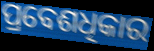
ପ୍ରବେଶଧିକାର